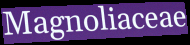
Magnoliaceae